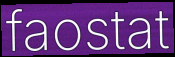
faostat